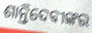
ଶାନ୍ତିଦେବୀଙ୍କର